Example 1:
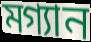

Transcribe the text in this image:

মগ্যান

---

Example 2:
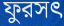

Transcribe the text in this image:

ফুরসৎ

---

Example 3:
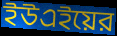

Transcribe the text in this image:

ইউএইয়ের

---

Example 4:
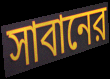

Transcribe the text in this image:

সাবানের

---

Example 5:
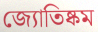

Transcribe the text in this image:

জ্যোতিষ্কম